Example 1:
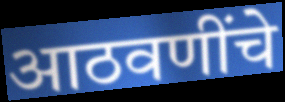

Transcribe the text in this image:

आठवणींचे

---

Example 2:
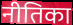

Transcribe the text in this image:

नीतिका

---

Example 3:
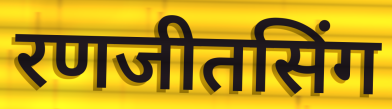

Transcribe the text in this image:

रणजीतसिंग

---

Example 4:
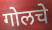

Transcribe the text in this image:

गोलचे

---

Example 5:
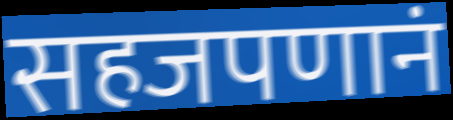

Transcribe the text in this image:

सहजपणानं